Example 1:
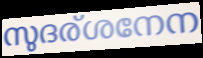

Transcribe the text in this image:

സുദര്ശനേന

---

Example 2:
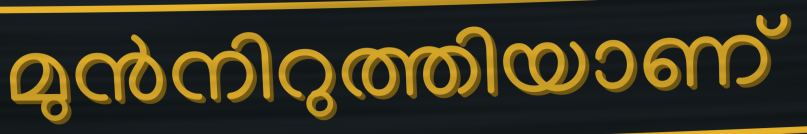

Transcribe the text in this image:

മുൻനിറുത്തിയാണ്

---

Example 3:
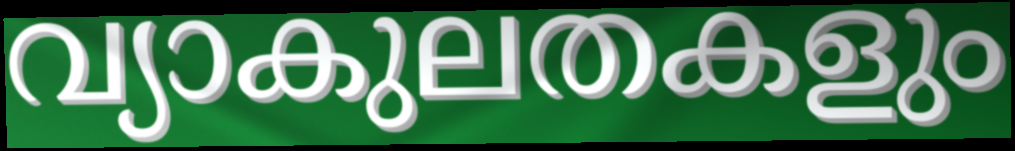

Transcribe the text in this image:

വ്യാകുലതകളും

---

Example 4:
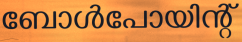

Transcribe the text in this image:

ബോൾപോയിന്റ്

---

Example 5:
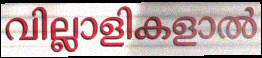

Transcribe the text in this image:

വില്ലാളികളാൽ